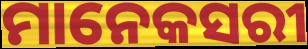
ମାନେକସରୀ